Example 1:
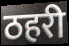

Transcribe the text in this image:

ठहरी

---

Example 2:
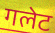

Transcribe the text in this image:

गलेट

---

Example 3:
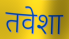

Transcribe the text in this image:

तवेशा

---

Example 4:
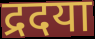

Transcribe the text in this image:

द्रदया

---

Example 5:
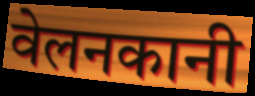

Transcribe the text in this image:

वेलनकानी